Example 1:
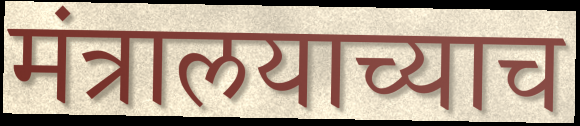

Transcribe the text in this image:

मंत्रालयाच्याच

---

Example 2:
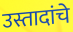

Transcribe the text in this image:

उस्तादांचे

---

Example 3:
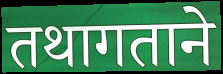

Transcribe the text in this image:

तथागताने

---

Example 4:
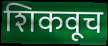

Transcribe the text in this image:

शिकवूच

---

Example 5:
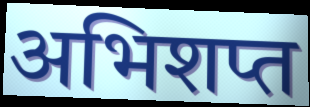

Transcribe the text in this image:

अभिशप्त